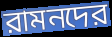
রামনদের